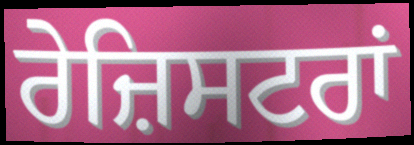
ਰੇਜ਼ਿਸਟਰਾਂ